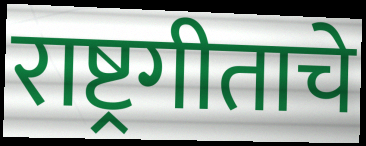
राष्ट्रगीताचे